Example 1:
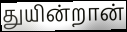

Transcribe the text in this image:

துயின்றான்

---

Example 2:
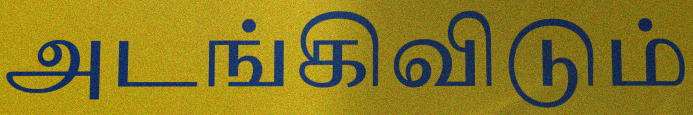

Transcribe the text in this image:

அடங்கிவிடும்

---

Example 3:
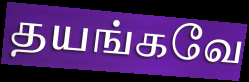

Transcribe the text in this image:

தயங்கவே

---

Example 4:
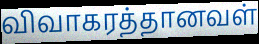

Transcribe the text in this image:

விவாகரத்தானவள்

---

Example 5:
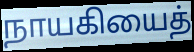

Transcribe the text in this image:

நாயகியைத்